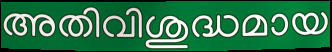
അതിവിശുദ്ധമായ